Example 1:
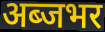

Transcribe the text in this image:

अब्जभर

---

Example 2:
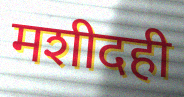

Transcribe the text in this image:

मशीदही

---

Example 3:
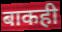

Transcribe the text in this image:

बाकही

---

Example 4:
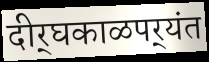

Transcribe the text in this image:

दीर्घकाळपर्यंत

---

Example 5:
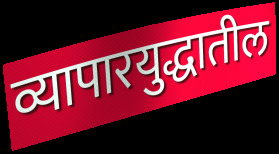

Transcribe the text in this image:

व्यापारयुद्धातील